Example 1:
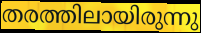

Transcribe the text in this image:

തരത്തിലായിരുന്നു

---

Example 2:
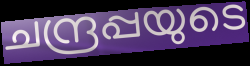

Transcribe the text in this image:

ചന്ദ്രപ്പയുടെ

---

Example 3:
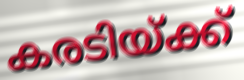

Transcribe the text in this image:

കരടിയ്ക്ക്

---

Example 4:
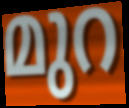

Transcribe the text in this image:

മുറ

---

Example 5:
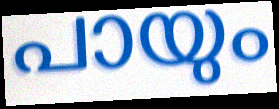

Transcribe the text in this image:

പായും